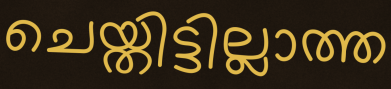
ചെയ്തിട്ടില്ലാത്ത